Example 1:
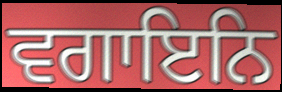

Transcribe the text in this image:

ਵਗਾਇਨਿ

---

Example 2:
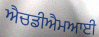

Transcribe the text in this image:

ਐਚਡੀਐਮਆਈ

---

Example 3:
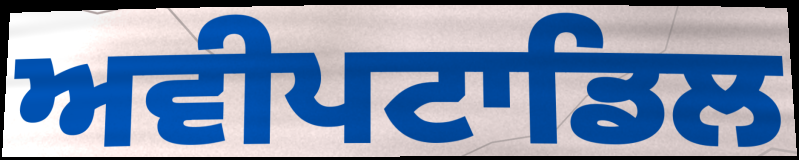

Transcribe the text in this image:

ਅਵੀਪਟਾਡਿਲ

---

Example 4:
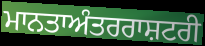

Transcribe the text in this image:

ਮਾਨਤਾਅੰਤਰਰਾਸ਼ਟਰੀ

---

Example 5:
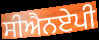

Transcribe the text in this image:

ਸੀਐਨਏਪੀ